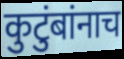
कुटुंबांनाच